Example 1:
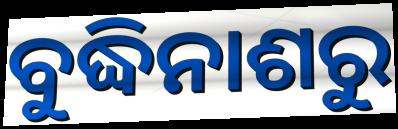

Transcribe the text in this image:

ବୁଦ୍ଧିନାଶରୁ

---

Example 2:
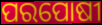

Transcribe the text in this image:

ପରପୋଷୀ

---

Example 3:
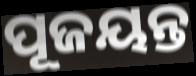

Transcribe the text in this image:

ପୂଜୟନ୍ତ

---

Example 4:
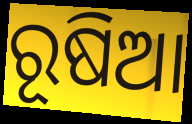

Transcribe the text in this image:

ରୂଷିଆ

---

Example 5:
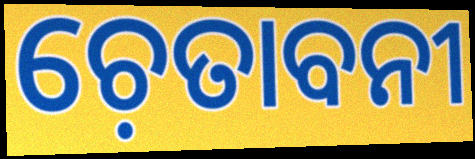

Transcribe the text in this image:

ଚ଼େତାବନୀ